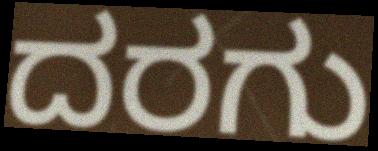
ದರಗು